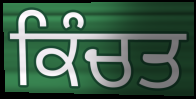
ਕਿੰਚਤ